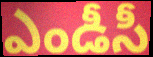
ఎండీసీ